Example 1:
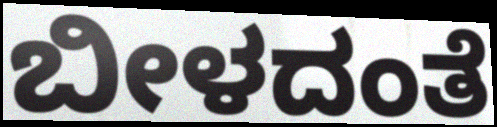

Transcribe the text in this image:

ಬೀಳದಂತೆ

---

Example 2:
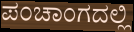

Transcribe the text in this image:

ಪಂಚಾಂಗದಲ್ಲಿ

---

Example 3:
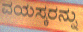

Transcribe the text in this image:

ವಯಸ್ಕರನ್ನು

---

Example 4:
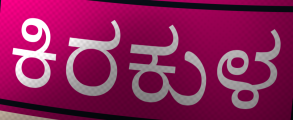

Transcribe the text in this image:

ಕಿರಕುಳ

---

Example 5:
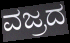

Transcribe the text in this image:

ವಜ್ರದ